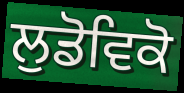
ਲੁਡੋਵਿਕੋ